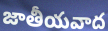
జాతీయవాద